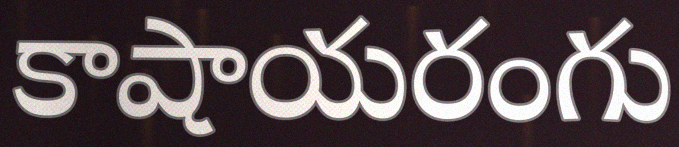
కాషాయరంగు